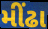
મીંઢા